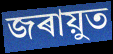
জৰায়ুত